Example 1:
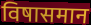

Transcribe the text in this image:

विषासमान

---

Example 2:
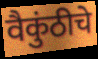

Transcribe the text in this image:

वैकुंठीचे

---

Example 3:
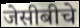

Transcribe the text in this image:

जेसीबीचे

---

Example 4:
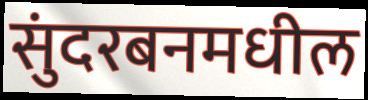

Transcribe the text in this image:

सुंदरबनमधील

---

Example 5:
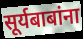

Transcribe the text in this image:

सूर्यबाबांना